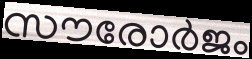
സൗരോർജം